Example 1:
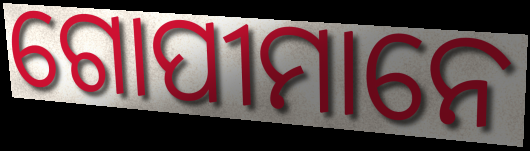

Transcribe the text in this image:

ଗୋପୀମାନେ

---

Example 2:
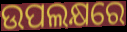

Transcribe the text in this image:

ଉପଲକ୍ଷରେ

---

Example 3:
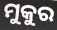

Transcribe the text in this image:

ମୁକୁର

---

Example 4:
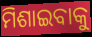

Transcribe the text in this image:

ମିଶାଇବାକୁ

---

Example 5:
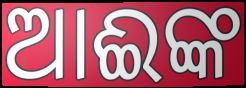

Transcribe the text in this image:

ଆଈଙ୍କ